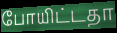
போயிட்டதா